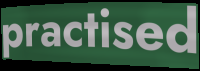
practised